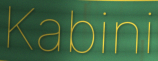
Kabini